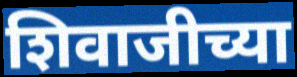
शिवाजीच्या